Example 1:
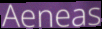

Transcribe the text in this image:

Aeneas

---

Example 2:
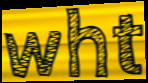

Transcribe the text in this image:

wht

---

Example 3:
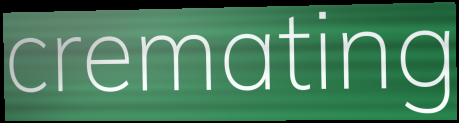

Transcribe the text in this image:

cremating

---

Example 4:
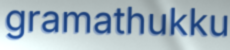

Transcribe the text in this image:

gramathukku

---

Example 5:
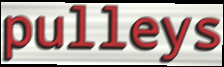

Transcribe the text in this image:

pulleys